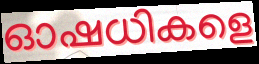
ഓഷധികളെ